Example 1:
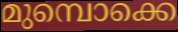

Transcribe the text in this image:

മുമ്പൊക്കെ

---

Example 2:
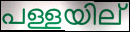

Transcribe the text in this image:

പള്ളയില്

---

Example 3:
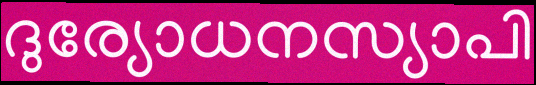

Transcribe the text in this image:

ദുര്യോധനസ്യാപി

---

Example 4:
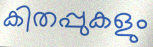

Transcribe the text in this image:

കിതപ്പുകളും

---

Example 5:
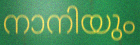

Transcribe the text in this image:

നാനിയും